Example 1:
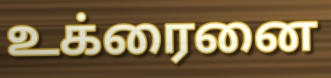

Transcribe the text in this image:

உக்ரைனை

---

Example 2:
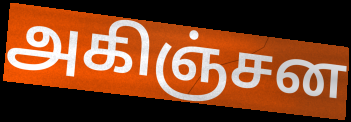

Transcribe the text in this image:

அகிஞ்சன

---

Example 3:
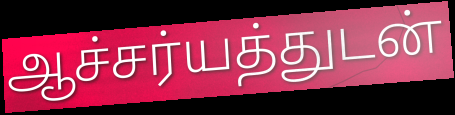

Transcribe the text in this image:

ஆச்சர்யத்துடன்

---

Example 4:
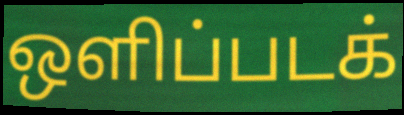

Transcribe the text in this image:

ஒளிப்படக்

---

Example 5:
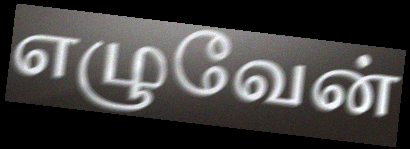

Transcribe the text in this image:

எழுவேன்